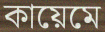
কায়েমে